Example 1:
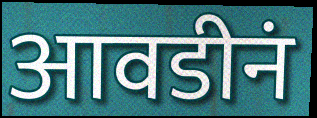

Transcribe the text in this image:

आवडीनं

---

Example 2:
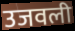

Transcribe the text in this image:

उजवली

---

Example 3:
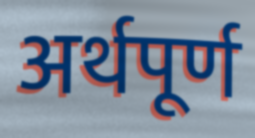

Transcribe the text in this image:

अर्थपूर्ण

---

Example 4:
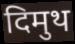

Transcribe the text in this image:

दिमुथ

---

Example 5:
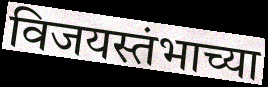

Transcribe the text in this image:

विजयस्तंभाच्या